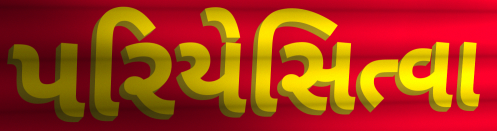
પરિયેસિત્વા